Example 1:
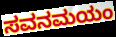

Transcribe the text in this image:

ಸವನಮಯಂ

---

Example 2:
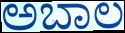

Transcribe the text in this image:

ಅಬಾಲ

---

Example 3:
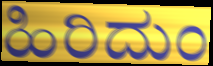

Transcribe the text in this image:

ಹಿರಿದುಂ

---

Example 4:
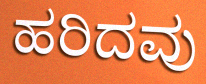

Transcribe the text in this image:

ಹರಿದವು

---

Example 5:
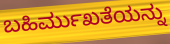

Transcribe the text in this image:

ಬಹಿರ್ಮುಖತೆಯನ್ನು